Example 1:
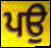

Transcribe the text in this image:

ਪਉ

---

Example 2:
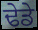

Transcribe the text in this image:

ਢੇਡੇ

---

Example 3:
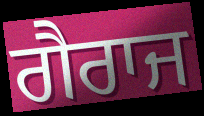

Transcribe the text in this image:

ਗੈਰਾਜ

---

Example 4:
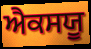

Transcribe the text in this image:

ਐਕਸਯੂ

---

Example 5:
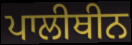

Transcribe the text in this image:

ਪਾਲੀਥੀਨ